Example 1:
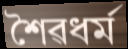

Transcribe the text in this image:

শৈৱধৰ্ম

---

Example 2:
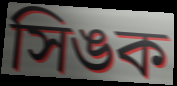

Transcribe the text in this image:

সিঙক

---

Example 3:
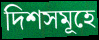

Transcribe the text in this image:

দিশসমূহে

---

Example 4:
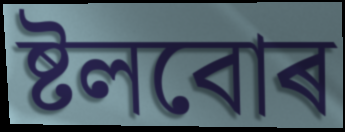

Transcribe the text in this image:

ষ্টলবোৰ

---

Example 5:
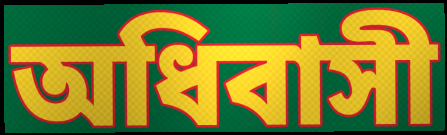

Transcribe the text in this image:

অধিবাসী